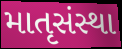
માતૃસંસ્થા